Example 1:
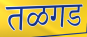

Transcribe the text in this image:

तळगड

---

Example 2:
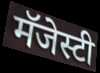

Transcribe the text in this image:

मॅजेस्टी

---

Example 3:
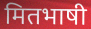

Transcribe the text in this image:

मितभाषी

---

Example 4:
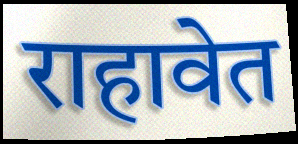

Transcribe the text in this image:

राहावेत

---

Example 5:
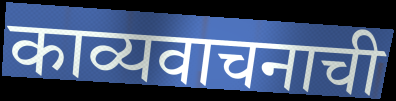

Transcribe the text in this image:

काव्यवाचनाची